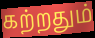
கற்றதும்